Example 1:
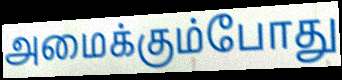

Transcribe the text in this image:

அமைக்கும்போது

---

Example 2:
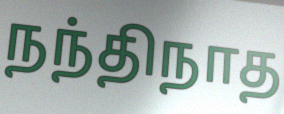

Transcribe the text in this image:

நந்திநாத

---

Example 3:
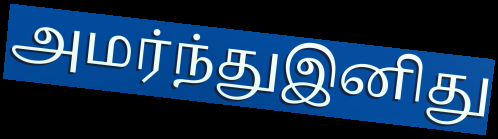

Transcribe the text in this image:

அமர்ந்துஇனிது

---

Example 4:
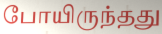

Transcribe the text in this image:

போயிருந்தது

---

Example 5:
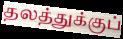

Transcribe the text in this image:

தலத்துக்குப்